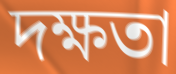
দক্ষতা